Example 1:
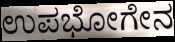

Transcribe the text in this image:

ಉಪಭೋಗೇನ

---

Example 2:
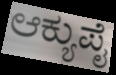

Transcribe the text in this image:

ಆಕ್ಯುಪೈ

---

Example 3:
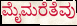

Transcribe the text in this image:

ಮೈಮರೆತೆವು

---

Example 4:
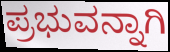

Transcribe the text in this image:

ಪ್ರಭುವನ್ನಾಗಿ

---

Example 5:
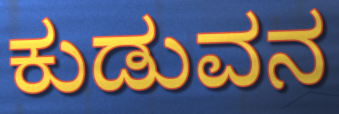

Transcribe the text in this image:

ಕುಡುವನ